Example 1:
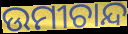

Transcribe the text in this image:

ଉମୀଚାନ୍ଦ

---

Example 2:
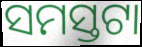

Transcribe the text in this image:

ସମସ୍ତଟା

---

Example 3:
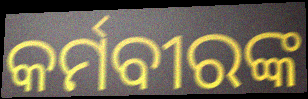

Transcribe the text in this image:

କର୍ମବୀରଙ୍କ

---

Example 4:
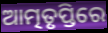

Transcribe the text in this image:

ଆତ୍ମତୃପ୍ତିରେ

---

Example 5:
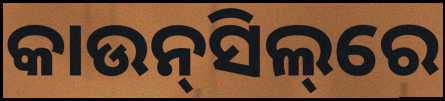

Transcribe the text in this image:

କାଉନ୍‌ସିଲ୍‌ରେ